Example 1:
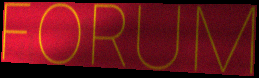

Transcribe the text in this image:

FORUM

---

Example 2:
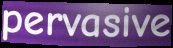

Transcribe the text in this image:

pervasive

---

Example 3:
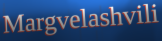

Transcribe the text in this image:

Margvelashvili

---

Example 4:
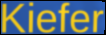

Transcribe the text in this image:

Kiefer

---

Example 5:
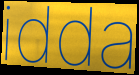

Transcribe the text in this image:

idda